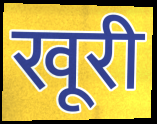
खूरी